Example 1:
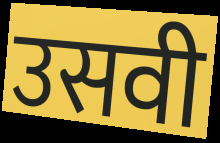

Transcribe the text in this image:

उसवी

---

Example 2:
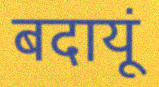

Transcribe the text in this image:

बदायूं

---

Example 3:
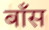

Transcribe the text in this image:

बाँस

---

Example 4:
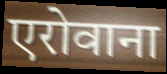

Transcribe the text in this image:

एरोवाना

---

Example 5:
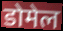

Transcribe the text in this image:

डोमेल